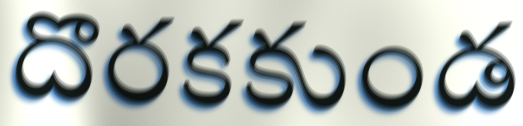
దొరకకుండ